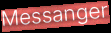
Messanger